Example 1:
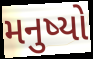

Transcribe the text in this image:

મનુષ્યો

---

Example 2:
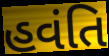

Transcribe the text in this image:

હવંતિ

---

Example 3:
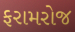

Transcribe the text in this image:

ફરામરોજ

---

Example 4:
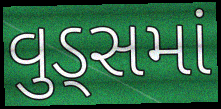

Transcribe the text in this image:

વુડ્સમાં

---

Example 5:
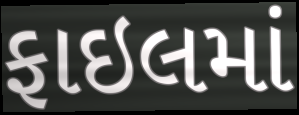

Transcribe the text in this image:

ફાઇલમાં